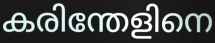
കരിന്തേളിനെ